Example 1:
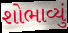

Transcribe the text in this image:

શોભાવ્યું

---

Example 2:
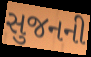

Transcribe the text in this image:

સુજનની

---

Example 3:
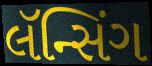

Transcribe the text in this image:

લૅન્સિંગ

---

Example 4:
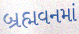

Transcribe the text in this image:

બ્રહ્મવનમાં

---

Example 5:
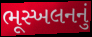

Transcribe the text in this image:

ભૂસ્ખલનનું